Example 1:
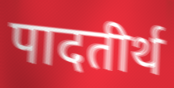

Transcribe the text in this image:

पादतीर्थ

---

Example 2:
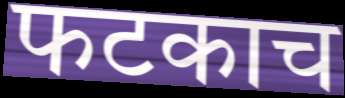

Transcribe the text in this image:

फटकाच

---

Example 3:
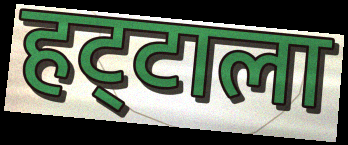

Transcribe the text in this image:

हट्‌टाला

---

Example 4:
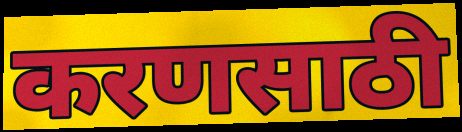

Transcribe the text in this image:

करणसाठी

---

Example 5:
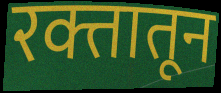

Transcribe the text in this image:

रक्तातून